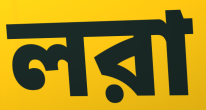
লরা